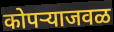
कोपऱ्याजवळ